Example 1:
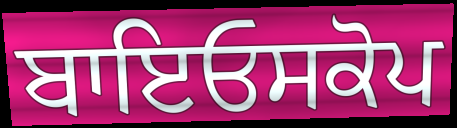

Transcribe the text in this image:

ਬਾਇਓਸਕੋਪ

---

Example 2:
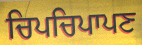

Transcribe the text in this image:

ਚਿਪਚਿਪਾਪਣ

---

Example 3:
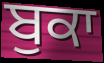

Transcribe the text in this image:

ਬੁਕਾ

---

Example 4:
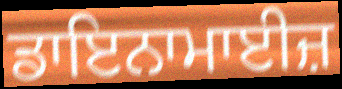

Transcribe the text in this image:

ਡਾਇਨਾਮਾਈਜ਼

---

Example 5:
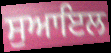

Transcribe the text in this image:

ਸੁਆਇਲ